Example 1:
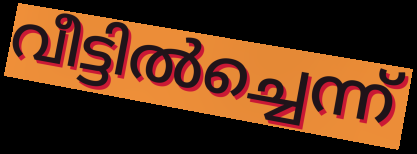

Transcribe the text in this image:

വീട്ടിൽച്ചെന്ന്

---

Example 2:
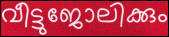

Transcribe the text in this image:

വീട്ടുജോലിക്കും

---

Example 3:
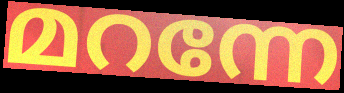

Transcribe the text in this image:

മറന്നേ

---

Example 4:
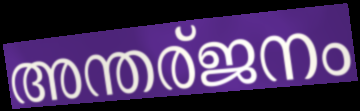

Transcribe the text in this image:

അന്തര്ജനം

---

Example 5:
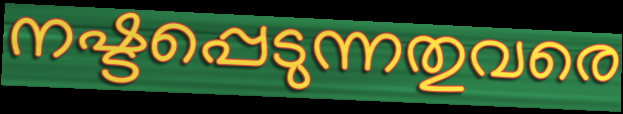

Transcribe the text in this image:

നഷ്ടപ്പെടുന്നതുവരെ